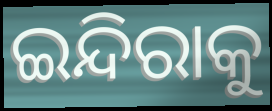
ଇନ୍ଦିରାକୁ